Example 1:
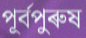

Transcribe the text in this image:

পূৰ্বপুৰুষ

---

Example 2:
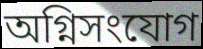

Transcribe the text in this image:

অগ্নিসংযোগ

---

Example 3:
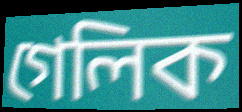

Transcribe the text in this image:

গেলিক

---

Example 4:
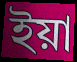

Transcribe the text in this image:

ইয়া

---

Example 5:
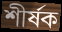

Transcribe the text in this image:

শীৰ্ষক